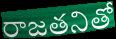
రాజతనితో